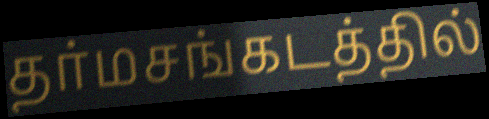
தர்மசங்கடத்தில்